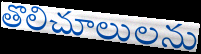
తొలిచూలులను